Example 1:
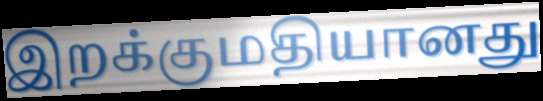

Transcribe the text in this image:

இறக்குமதியானது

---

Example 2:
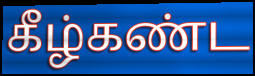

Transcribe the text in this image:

கீழ்கண்ட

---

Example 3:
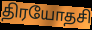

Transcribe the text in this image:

திரயோதசி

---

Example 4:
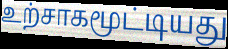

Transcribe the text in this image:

உற்சாகமூட்டியது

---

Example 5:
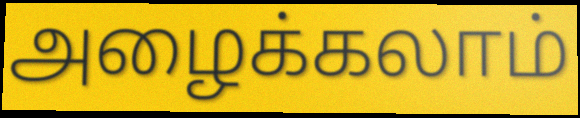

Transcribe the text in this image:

அழைக்கலாம்